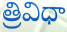
త్రివిధా